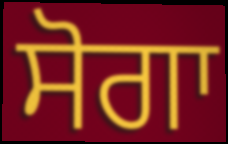
ਸੋਗਾ